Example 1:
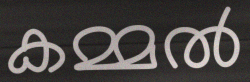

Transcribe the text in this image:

കമ്മൽ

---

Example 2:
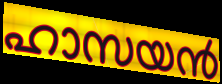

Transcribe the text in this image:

ഹാസയൻ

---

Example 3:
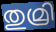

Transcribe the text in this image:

തുമ്രി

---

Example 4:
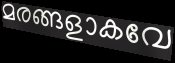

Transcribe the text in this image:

മരങ്ങളാകവേ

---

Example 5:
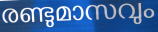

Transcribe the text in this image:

രണ്ടുമാസവും